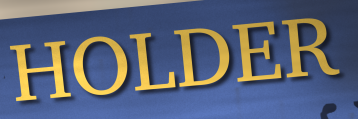
HOLDER